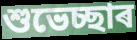
শুভেচ্ছাৰ